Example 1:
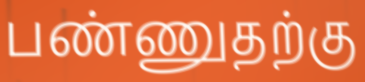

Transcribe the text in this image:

பண்ணுதற்கு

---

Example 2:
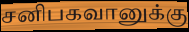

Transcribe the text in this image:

சனிபகவானுக்கு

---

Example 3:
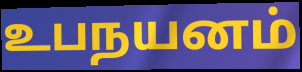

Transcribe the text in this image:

உபநயனம்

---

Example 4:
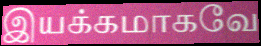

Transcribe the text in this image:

இயக்கமாகவே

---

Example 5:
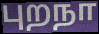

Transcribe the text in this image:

புறநா